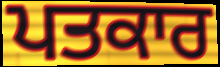
ਪਤਕਾਰ